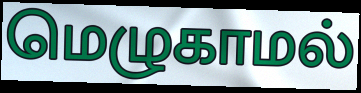
மெழுகாமல்